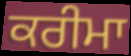
ਕਰੀਮਾ